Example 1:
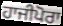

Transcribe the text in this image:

ਹਾਜੀਪੋਰਾ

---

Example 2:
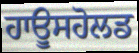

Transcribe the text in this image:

ਹਾਊਸਹੋਲਡ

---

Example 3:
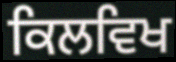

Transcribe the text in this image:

ਕਿਲਵਿਖ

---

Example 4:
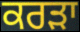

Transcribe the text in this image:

ਕਰੜਾ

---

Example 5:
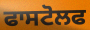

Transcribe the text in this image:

ਫਾਸਟੋਲਫ